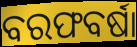
ବରଫବର୍ଷା